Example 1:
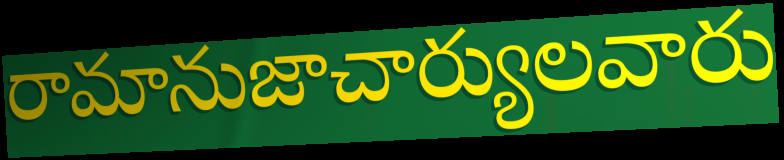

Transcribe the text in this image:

రామానుజాచార్యులవారు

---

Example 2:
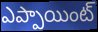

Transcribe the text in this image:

ఎప్పాయింట్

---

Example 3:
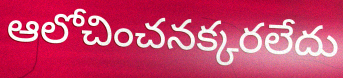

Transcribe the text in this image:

ఆలోచించనక్కరలేదు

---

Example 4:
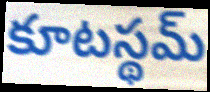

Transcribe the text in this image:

కూటస్థమ్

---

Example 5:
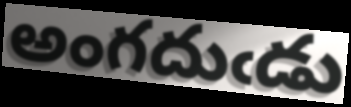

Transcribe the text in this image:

అంగదుఁడు